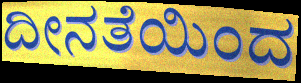
ದೀನತೆಯಿಂದ